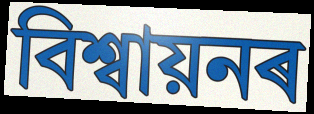
বিশ্ৱায়নৰ